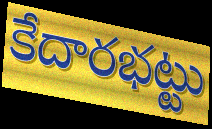
కేదారభట్టు